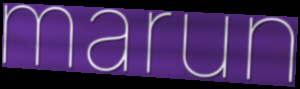
marun